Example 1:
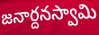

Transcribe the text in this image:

జనార్దనస్వామి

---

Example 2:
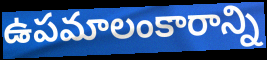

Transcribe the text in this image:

ఉపమాలంకారాన్ని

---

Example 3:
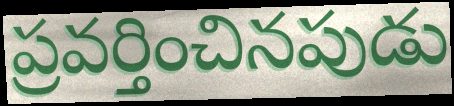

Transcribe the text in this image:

ప్రవర్తించినపుడు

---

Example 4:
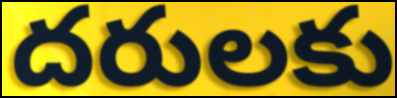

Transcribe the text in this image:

దరులకు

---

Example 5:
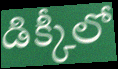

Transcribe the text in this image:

డిక్కీలో